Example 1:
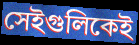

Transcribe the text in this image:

সেইগুলিকেই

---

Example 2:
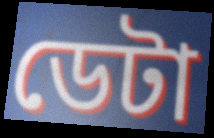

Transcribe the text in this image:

ডেটা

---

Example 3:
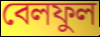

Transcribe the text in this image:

বেলফুল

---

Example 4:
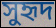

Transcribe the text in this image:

সুহৃদ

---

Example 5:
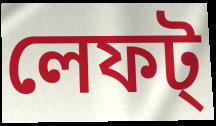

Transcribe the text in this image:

লেফট্